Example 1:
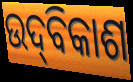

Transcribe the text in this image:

ଉଦ୍‌ବିକାଶ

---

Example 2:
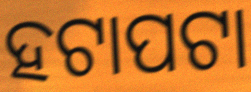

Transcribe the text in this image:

ହଟାପଟା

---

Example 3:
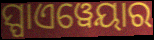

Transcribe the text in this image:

ସ୍ପାଏୱେୟାର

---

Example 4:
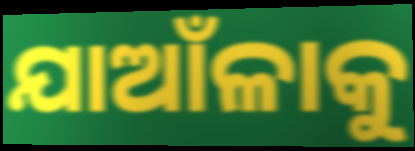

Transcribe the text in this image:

ଯାଆଁଳାକୁ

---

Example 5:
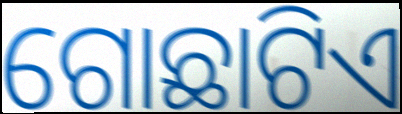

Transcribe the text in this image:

ଗୋଛାଟିଏ